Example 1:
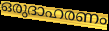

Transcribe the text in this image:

ഒരുദാഹരണം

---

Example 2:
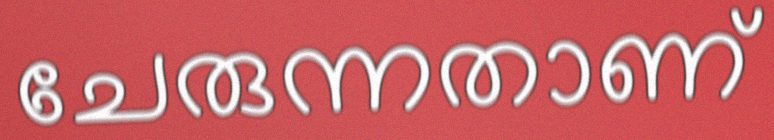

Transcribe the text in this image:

ചേരുന്നതാണ്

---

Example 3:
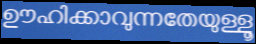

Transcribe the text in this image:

ഊഹിക്കാവുന്നതേയുള്ളൂ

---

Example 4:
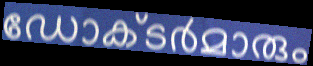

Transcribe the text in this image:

ഡോക്ടർമാരും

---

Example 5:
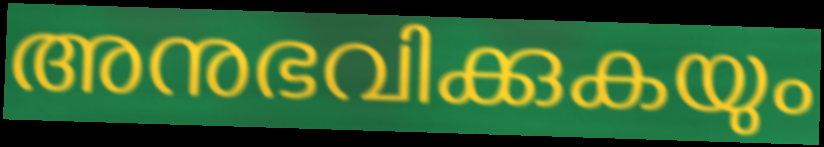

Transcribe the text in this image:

അനുഭവിക്കുകയും